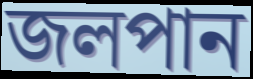
জলপান